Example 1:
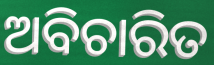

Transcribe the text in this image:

ଅବିଚାରିତ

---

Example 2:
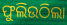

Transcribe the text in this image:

ଫୁଲିଉଠିଲା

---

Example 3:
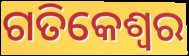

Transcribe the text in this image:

ଗତିକେଶ୍ବର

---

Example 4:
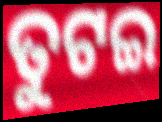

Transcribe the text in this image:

ତୁଟଇ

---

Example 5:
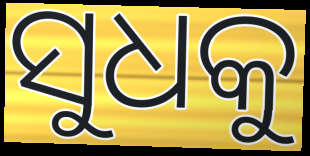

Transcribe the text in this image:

ସୁଧକୁ